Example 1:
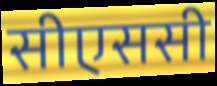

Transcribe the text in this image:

सीएससी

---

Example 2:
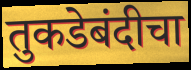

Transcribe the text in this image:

तुकडेबंदीचा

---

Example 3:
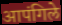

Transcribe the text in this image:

आपंगिले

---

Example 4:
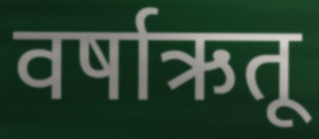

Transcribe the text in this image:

वर्षाऋतू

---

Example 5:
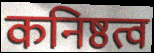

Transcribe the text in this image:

कनिष्ठत्व